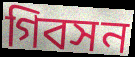
গিবসন